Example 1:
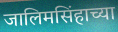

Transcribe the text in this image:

जालिमसिंहाच्या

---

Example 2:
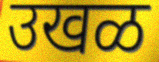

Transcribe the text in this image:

उखळ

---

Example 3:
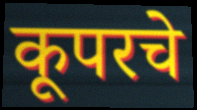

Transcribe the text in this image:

कूपरचे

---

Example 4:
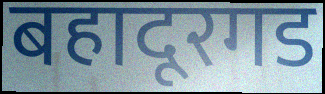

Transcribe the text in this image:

बहादूरगड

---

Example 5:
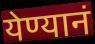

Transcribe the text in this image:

येण्यानं